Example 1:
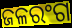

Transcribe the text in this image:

ଜଳରଂଗ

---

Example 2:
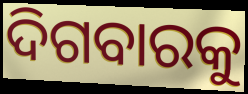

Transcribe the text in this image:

ଦିଗବାରକୁ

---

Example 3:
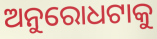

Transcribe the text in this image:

ଅନୁରୋଧଟାକୁ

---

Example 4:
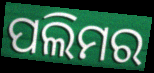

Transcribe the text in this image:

ପଲିମର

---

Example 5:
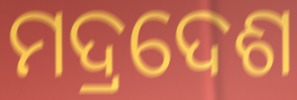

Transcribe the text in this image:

ମଦ୍ରଦେଶ